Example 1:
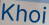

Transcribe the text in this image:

Khoi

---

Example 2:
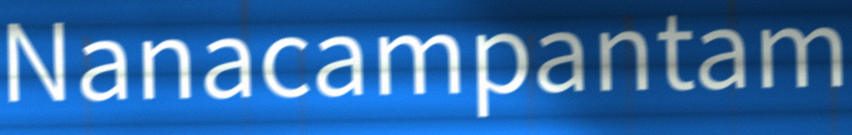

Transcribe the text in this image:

Nanacampantam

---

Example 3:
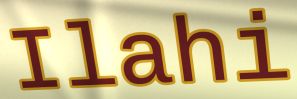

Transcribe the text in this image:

Ilahi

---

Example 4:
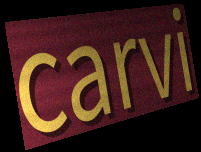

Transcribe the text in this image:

carvi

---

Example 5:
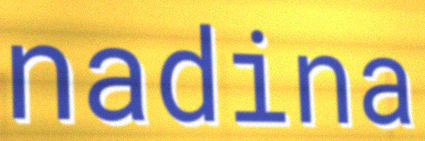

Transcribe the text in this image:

nadina